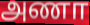
அணா